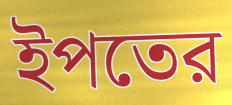
ইপতের